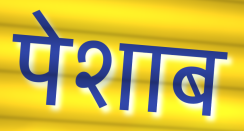
पेशाब